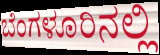
ಬೆಂಗಳೂರಿನಲ್ಲಿ